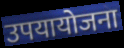
उपयायोजना